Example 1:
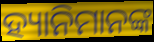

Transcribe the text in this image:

ହ୍ୟାନିମାନଙ୍କ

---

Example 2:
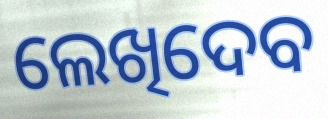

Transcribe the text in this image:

ଲେଖିଦେବ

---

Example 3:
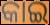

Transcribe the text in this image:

କାଇ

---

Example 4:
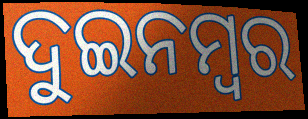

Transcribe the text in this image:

ଦୁଇନମ୍ୱର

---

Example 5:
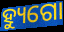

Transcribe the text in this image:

ହ୍ୟୁଗୋ